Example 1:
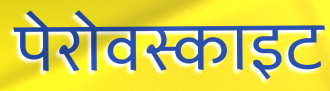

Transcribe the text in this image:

पेरोवस्काइट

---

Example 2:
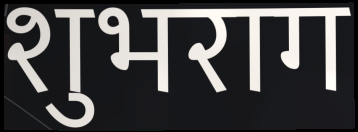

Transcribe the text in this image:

शुभराग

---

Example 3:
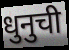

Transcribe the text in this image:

धुनुची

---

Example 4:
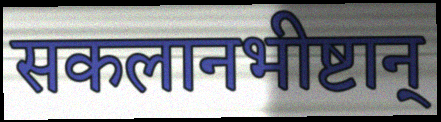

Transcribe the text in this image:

सकलानभीष्टान्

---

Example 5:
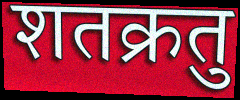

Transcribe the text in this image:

शतक्रतु